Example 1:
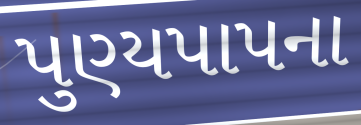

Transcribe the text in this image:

પુણ્યપાપના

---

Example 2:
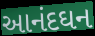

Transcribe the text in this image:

આનંદઘન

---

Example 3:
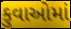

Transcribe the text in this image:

કુવાઓમાં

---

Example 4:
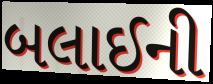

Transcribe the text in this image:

બલાઈની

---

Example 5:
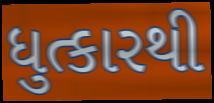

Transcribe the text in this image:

ધુત્કારથી